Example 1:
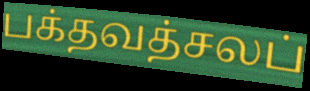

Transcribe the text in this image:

பக்தவத்சலப்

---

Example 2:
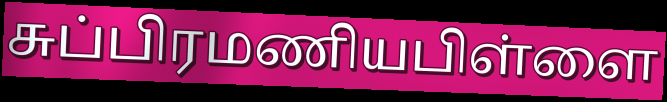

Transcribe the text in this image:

சுப்பிரமணியபிள்ளை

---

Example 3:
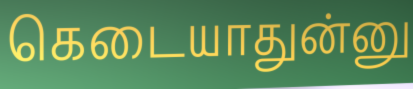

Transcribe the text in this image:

கெடையாதுன்னு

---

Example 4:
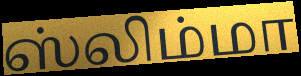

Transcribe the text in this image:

ஸ்லிம்மா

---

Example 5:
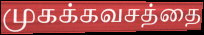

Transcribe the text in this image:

முகக்கவசத்தை